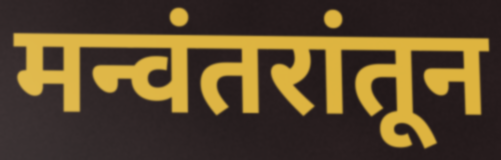
मन्वंतरांतून